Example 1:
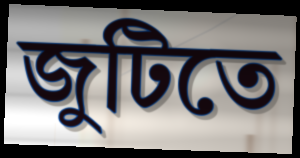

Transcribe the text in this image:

জুটিতে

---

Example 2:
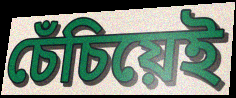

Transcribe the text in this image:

চেঁচিয়েই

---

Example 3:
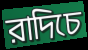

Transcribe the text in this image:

রাদিচে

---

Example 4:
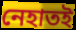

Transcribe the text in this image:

নেহাতই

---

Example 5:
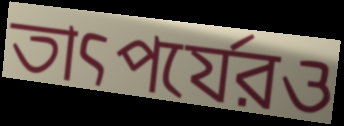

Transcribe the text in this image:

তাৎপর্যেরও